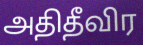
அதிதீவிர